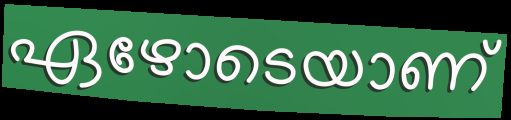
ഏഴോടെയാണ്